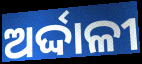
ଅର୍ଦ୍ଦାଳୀ